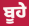
ਬੂਹੇ